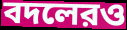
বদলেরও